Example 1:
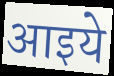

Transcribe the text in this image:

आइये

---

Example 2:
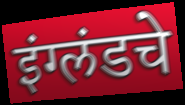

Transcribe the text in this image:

इंग्लंडचे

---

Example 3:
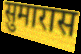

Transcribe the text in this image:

सुमारास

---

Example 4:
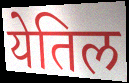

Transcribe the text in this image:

येतिल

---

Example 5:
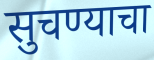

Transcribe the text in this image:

सुचण्याचा